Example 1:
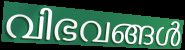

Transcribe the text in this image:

വിഭവങ്ങൾ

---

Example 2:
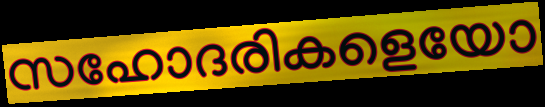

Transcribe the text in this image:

സഹോദരികളെയോ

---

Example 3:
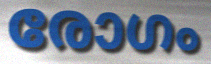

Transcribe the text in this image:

രോഗം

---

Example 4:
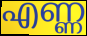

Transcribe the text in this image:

എണ്ണ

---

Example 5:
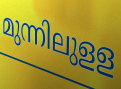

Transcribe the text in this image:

മുന്നിലുളള